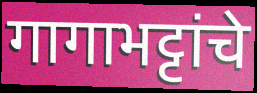
गागाभट्टांचे